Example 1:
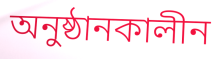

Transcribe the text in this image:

অনুষ্ঠানকালীন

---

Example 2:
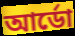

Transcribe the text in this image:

আর্ডো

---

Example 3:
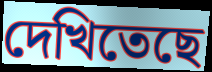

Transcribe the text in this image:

দেখিতেছে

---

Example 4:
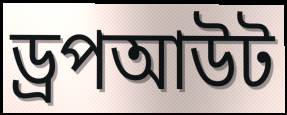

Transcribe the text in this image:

ড্রপআউট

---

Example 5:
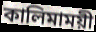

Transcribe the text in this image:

কালিমাময়ী